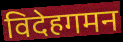
विदेहगमन